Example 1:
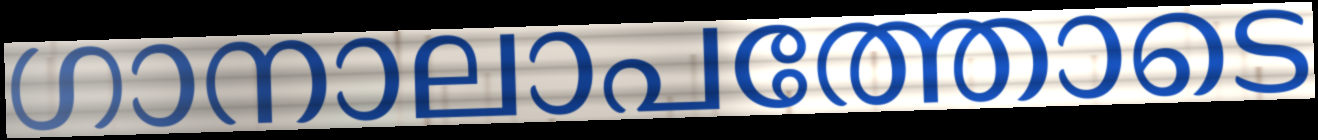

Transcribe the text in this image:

ഗാനാലാപത്തോടെ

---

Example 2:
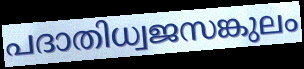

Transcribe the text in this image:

പദാതിധ്വജസങ്കുലം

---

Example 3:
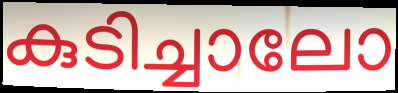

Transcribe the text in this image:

കുടിച്ചാലോ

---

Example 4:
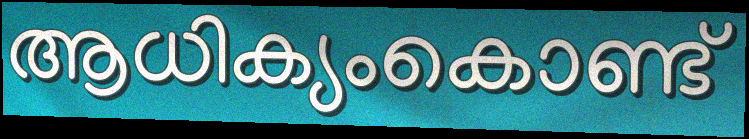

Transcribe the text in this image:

ആധിക്യംകൊണ്ട്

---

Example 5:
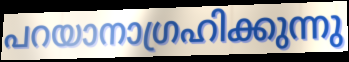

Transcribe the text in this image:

പറയാനാഗ്രഹിക്കുന്നു